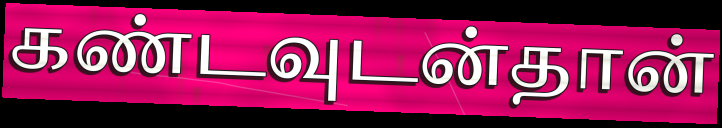
கண்டவுடன்தான்